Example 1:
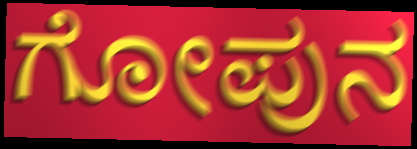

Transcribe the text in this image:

ಗೋಪುನ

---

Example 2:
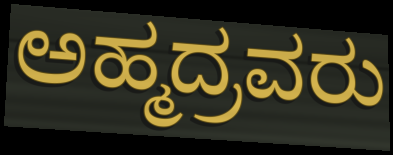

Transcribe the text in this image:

ಅಹ್ಮದ್ರವರು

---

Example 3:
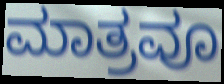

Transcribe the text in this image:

ಮಾತ್ರವೂ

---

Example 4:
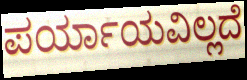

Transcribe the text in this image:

ಪರ್ಯಾಯವಿಲ್ಲದೆ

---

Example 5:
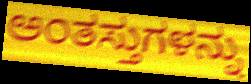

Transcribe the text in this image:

ಅಂತಸ್ತುಗಳನ್ನು